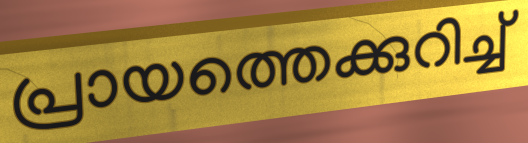
പ്രായത്തെക്കുറിച്ച്